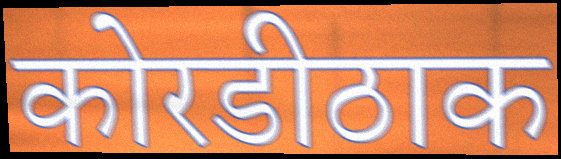
कोरडीठाक